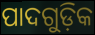
ପାଦଗୁଡ଼ିକ